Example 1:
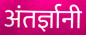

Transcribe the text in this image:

अंतर्ज्ञानी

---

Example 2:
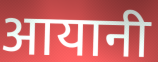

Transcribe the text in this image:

आयानी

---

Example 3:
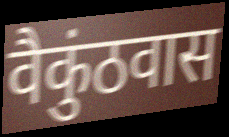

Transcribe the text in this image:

वैकुंठवास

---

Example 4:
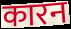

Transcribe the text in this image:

कारन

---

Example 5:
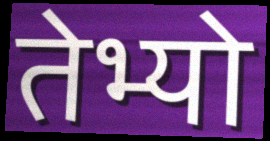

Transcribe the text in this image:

तेभ्यो